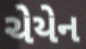
ચેયેન